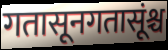
गतासूनगतासूंश्च